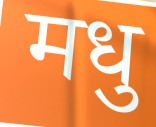
मधु